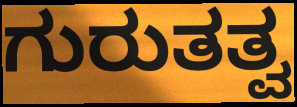
ಗುರುತತ್ವ